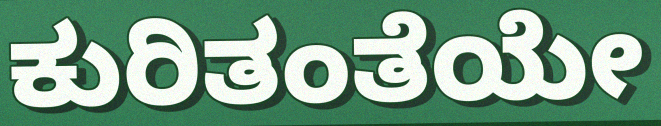
ಕುರಿತಂತೆಯೇ